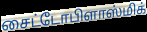
சைட்டோபிளாஸ்மிக்